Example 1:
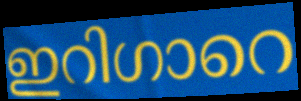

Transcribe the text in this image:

ഇറിഗാറെ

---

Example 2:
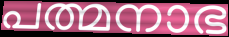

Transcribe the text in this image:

പത്മനാഭ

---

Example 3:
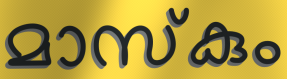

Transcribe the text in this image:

മാസ്കും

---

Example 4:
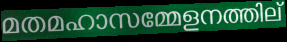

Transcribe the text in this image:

മതമഹാസമ്മേളനത്തില്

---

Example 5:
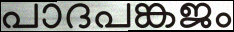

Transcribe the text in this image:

പാദപങ്കജം